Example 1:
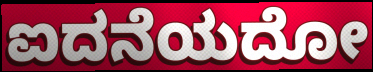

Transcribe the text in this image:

ಐದನೆಯದೋ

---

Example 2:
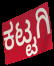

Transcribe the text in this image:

ಕಟ್ಟಗಿ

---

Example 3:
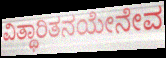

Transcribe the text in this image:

ವಿತ್ಥಾರಿತನಯೇನೇವ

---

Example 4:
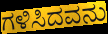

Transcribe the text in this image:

ಗಳಿಸಿದವನು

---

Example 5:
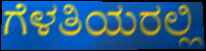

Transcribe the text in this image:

ಗೆಳತಿಯರಲ್ಲಿ